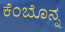
ಕೆಂಬೊನ್ನ